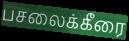
பசலைக்கீரை